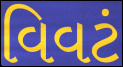
વિવટં